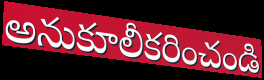
అనుకూలీకరించండి